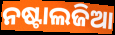
ନଷ୍ଟାଲଜିଆ